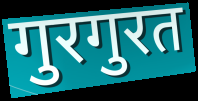
गुरगुरत